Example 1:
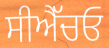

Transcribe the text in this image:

ਸੀਐੱਚਓ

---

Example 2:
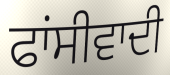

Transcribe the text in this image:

ਫਾਂਸੀਵਾਦੀ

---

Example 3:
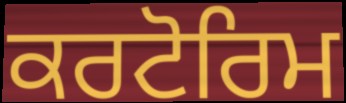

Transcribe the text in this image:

ਕਰਟੋਰਿਮ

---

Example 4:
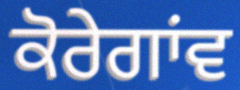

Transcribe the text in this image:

ਕੋਰੇਗਾਂਵ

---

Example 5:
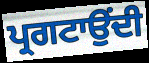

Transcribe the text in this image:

ਪ੍ਰਗਟਾਉਂਦੀ